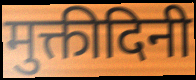
मुक्तीदिनी